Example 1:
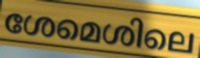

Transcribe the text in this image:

ശേമെശിലെ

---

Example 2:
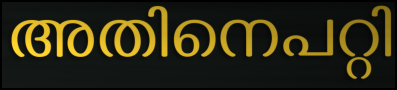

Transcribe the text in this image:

അതിനെപറ്റി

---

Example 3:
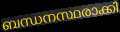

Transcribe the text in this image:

ബന്ധനസ്ഥരാക്കി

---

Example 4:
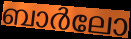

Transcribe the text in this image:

ബാർലോ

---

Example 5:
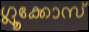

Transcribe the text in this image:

ഗ്ലൂക്കോസ്